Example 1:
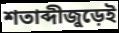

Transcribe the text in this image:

শতাব্দীজুড়েই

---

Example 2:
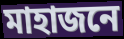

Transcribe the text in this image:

মাহাজনে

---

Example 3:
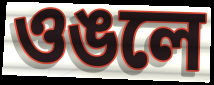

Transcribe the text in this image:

ওঙলে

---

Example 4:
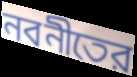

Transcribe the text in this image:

নবনীতের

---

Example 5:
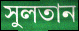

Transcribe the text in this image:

সুলতান